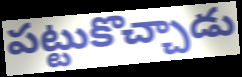
పట్టుకొచ్చాడు